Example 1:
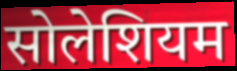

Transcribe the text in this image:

सोलेशियम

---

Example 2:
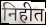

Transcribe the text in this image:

निहीत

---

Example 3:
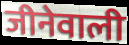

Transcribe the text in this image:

जीनेवाली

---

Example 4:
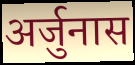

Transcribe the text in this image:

अर्जुनास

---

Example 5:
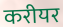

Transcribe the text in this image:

करीयर